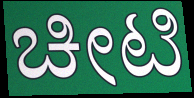
ಚೀಟಿ